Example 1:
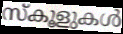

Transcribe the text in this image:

സ്കൂളുകൾ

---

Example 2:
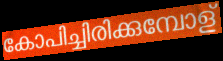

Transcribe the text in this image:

കോപിച്ചിരിക്കുമ്പോള്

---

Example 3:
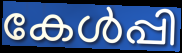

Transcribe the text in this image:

കേൾപ്പി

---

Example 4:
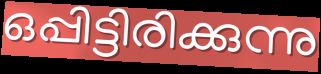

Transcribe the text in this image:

ഒപ്പിട്ടിരിക്കുന്നു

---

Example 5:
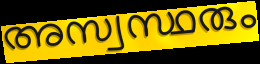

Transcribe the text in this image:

അസ്വസ്ഥരും